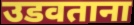
उडवताना